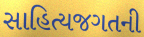
સાહિત્યજગતની